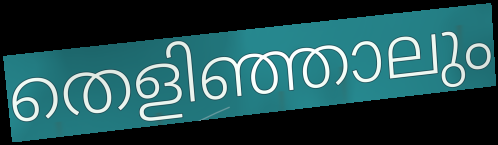
തെളിഞ്ഞാലും